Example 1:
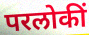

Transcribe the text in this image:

परलोकीं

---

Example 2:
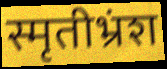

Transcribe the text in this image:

स्मृतीभ्रंश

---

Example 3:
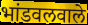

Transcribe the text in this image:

भांडवलवाले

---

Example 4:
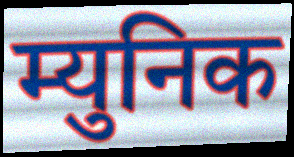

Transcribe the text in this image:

म्युनिक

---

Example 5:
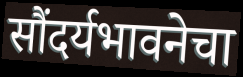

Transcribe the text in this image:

सौंदर्यभावनेचा